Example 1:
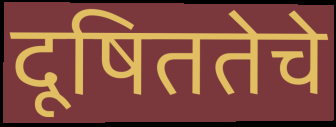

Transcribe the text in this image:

दूषिततेचे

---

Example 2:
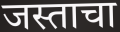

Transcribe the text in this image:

जस्ताचा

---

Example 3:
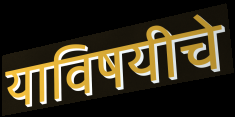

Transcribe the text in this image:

याविषयीचे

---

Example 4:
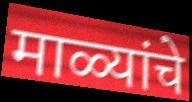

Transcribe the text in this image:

माळ्यांचे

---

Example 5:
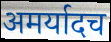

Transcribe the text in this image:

अमर्यादच